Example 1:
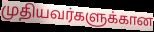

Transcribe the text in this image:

முதியவர்களுக்கான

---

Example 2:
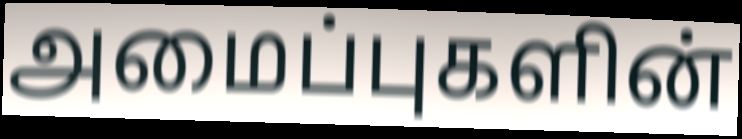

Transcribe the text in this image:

அமைப்புகளின்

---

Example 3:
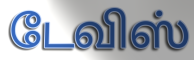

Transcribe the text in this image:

டேவிஸ்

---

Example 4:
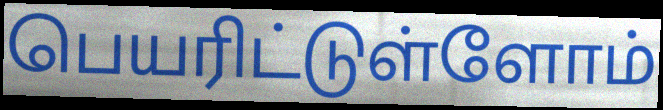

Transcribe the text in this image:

பெயரிட்டுள்ளோம்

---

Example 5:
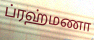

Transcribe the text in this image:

ப்ரஹ்மணா